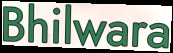
Bhilwara